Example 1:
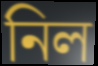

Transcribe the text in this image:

নিল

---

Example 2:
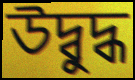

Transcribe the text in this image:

উদ্বুদ্ধ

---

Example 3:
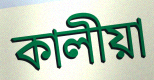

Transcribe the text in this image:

কালীয়া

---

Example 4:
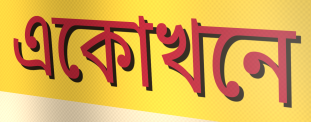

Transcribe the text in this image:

একোখনে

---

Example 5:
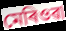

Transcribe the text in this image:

মেৰিওৱা